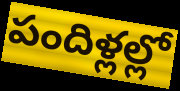
పందిళ్లల్లో